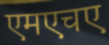
एमएचए